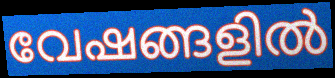
വേഷങ്ങളിൽ